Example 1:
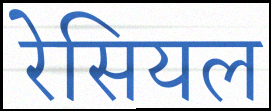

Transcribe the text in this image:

रेसियल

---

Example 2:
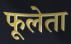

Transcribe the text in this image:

फूलेता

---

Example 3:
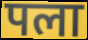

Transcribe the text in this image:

पला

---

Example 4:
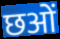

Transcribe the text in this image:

छओं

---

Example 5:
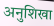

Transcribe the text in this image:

अनुशिखा